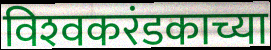
विश्‍वकरंडकाच्या